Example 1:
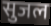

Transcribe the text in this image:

सुजल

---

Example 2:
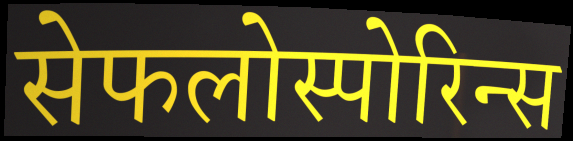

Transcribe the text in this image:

सेफलोस्पोरिन्स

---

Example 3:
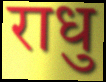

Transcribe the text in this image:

राधु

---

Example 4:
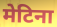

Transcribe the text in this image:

मेटिना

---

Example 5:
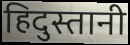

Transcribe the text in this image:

हिदुस्तानी